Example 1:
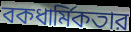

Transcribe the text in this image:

বকধার্মিকতার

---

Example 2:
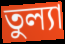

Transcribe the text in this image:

তুল্যা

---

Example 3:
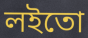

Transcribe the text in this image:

লইতো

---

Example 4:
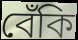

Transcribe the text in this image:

বেঁকি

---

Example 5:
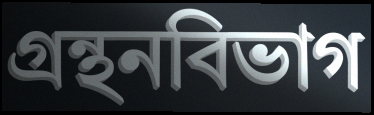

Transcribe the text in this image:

গ্রন্থনবিভাগ